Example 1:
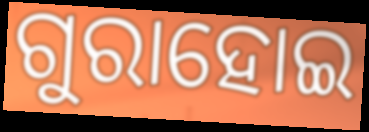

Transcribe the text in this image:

ଗୁରାହୋଇ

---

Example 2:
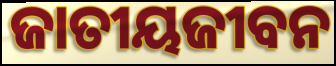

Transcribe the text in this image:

ଜାତୀୟଜୀବନ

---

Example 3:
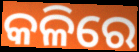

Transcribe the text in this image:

କଳିରେ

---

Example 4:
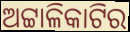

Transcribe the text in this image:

ଅଟ୍ଟାଳିକାଟିର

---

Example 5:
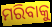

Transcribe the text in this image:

ମରିବାକୁ